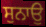
ਸੁਨਾਉ